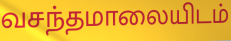
வசந்தமாலையிடம்